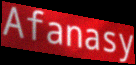
Afanasy